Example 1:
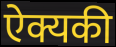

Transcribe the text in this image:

ऐक्यकी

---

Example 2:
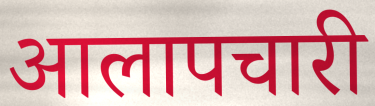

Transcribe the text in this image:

आलापचारी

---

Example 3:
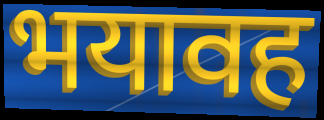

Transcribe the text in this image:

भयावह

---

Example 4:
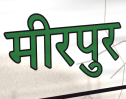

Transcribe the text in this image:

मीरपुर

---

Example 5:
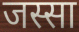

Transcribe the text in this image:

जस्सा